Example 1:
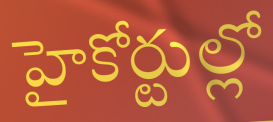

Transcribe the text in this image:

హైకోర్టుల్లో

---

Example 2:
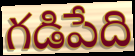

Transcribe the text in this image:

గడిపేది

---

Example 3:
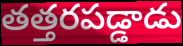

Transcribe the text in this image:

తత్తరపడ్డాడు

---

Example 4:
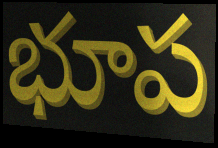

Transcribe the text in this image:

భూప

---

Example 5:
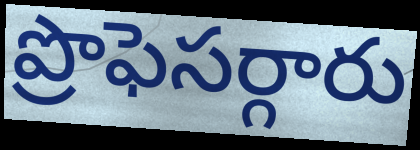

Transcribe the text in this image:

ప్రొఫెసర్గారు